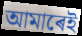
আমাৰেই